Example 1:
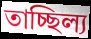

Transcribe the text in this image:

তাচ্ছিল্য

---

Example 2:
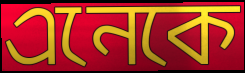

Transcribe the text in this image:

এনেকে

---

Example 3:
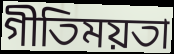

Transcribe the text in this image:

গীতিময়তা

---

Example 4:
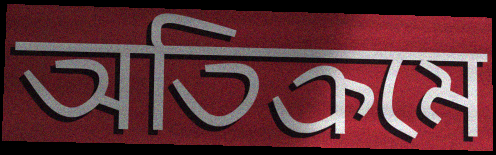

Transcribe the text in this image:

অতিক্ৰমে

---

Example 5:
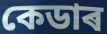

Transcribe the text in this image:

কেডাৰ